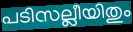
പടിസല്ലീയിതും